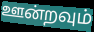
ஊன்றவும்